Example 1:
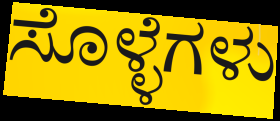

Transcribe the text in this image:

ಸೊಳ್ಳೆಗಳು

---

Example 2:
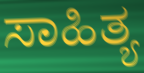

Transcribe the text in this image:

ಸಾಹಿತ್ಯ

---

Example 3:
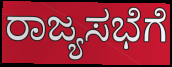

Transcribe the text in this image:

ರಾಜ್ಯಸಭೆಗೆ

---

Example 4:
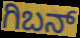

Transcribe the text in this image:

ಗಿಬನ್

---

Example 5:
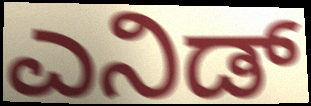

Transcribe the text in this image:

ಎನಿಡ್